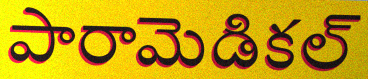
పారామెడికల్